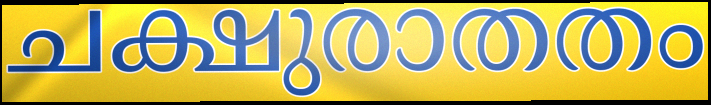
ചക്ഷുരാതതം